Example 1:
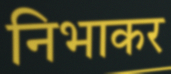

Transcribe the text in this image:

निभाकर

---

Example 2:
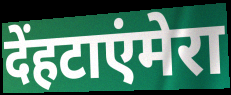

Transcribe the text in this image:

देंहटाएंमेरा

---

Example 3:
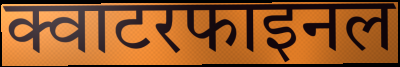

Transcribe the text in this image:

क्वाटरफाइनल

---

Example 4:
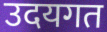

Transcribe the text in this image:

उदयगत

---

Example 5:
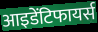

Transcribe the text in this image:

आइडेंटिफायर्स